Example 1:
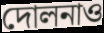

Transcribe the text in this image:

দোলনাও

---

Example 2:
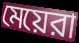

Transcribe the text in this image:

মেয়েরা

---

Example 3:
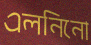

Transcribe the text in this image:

এলনিনো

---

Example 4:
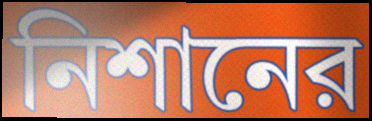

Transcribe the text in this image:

নিশানের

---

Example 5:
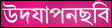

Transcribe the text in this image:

উদযাপনছবি